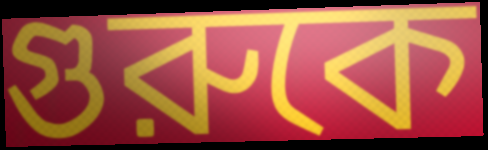
গুরুকে